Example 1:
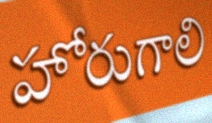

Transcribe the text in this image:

హోరుగాలి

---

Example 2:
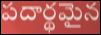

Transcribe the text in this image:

పదార్థమైన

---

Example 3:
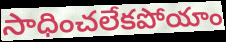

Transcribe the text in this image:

సాధించలేకపోయాం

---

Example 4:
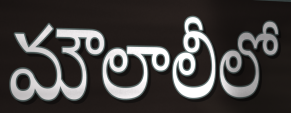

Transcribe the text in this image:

మౌలాలీలో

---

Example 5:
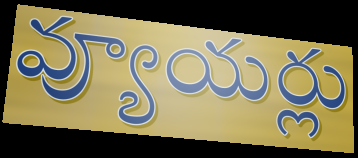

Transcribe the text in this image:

వ్యూయర్లు